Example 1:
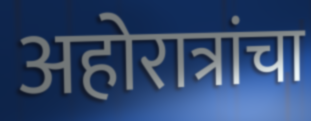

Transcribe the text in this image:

अहोरात्रांचा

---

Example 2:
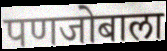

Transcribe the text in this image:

पणजोबाला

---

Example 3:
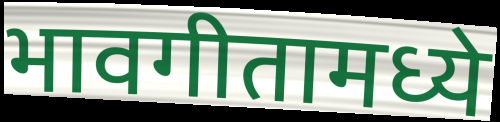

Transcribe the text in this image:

भावगीतामध्ये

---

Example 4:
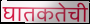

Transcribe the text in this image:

घातकतेची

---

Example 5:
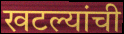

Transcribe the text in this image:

खटल्यांची